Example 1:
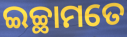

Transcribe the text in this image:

ଇଚ୍ଛାମତେ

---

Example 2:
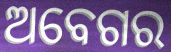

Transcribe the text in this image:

ଅବେଗର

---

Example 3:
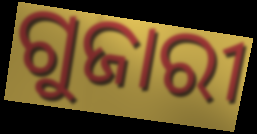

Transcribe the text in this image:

ଗୁଜାରୀ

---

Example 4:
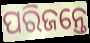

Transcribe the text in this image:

ପରିଜନ୍ତେ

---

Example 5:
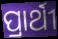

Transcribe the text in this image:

ପ୍ରାର୍ଥୀ